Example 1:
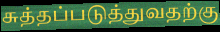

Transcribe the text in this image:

சுத்தப்படுத்துவதற்கு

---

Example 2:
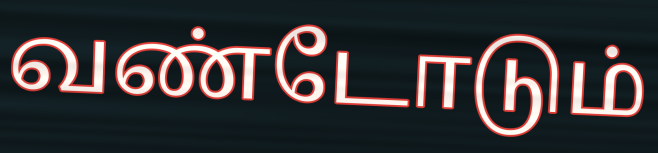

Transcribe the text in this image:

வண்டோடும்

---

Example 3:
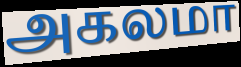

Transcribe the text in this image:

அகலமா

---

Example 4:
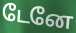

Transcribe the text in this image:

டேனே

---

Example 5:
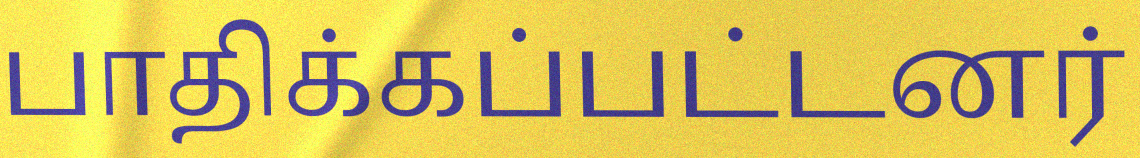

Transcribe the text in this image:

பாதிக்கப்பட்டனர்